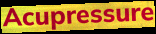
Acupressure